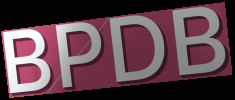
BPDB